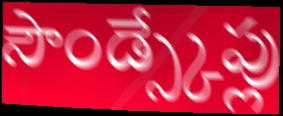
సౌండ్స్కేప్లు